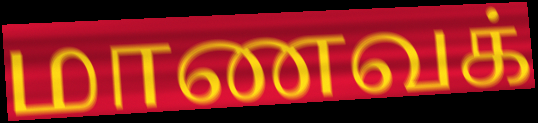
மாணவக்